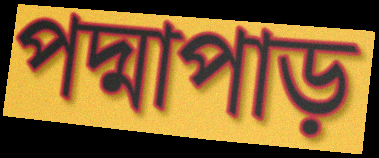
পদ্মাপাড়